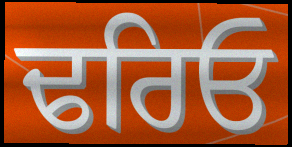
ਢਰਿਓ